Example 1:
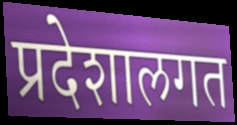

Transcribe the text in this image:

प्रदेशालगत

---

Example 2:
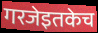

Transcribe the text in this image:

गरजेइतकेच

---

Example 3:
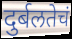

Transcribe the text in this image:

दुर्बलतेचं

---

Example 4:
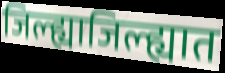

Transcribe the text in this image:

जिल्ह्याजिल्ह्यात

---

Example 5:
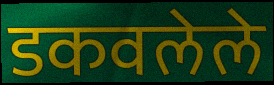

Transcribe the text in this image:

डकवलेले